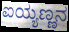
ಐಯ್ಯಣ್ಣನ